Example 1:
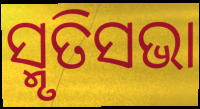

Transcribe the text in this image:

ସ୍ମୃତିସଭା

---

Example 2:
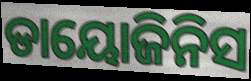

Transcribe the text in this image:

ଡାୟୋଜିନିସ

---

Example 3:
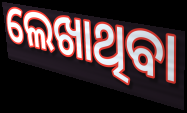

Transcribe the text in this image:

ଲେଖାଥିବା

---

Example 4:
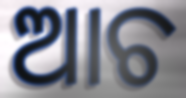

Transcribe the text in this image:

ଆଚ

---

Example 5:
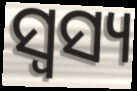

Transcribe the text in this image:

ସ୍ଵସ୍ୟ